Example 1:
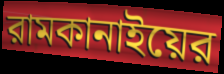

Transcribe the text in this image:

রামকানাইয়ের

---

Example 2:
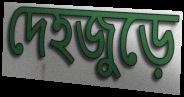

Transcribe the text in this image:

দেহজুড়ে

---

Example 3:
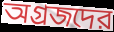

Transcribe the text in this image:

অগ্রজদের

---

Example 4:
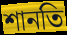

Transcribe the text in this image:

শানতি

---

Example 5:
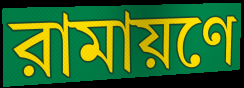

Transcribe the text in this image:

রামায়ণে